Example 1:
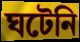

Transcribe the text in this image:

ঘটেনি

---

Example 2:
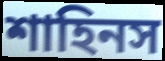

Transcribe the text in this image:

শাহিনস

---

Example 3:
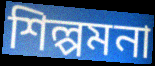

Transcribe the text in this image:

শিল্পমনা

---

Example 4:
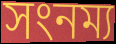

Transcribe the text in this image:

সংনম্য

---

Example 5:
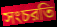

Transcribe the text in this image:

সংচরতি